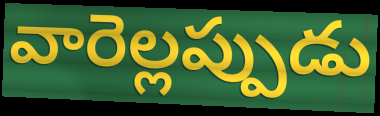
వారెల్లప్పుడు